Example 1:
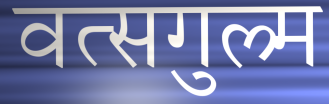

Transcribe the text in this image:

वत्सगुल्म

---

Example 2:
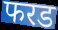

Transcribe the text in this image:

फरड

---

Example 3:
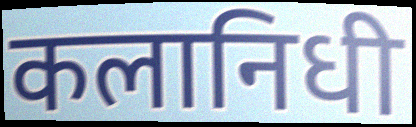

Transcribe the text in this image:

कलानिधी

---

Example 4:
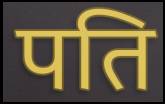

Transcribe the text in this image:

पति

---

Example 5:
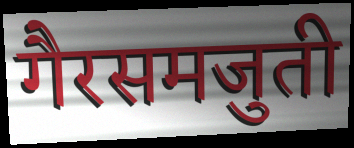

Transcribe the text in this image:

गैरसमजुती